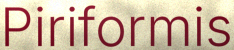
Piriformis